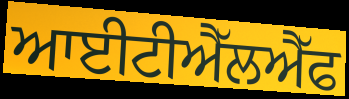
ਆਈਟੀਐੱਲਐੱਫ